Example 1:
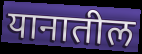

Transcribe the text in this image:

यानातील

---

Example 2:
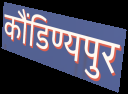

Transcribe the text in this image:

कौंडिण्यपुर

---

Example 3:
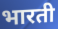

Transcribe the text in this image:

भारती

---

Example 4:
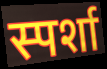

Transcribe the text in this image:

स्पर्शा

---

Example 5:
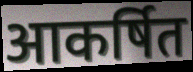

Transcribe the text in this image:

आकर्षित